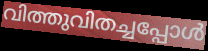
വിത്തുവിതച്ചപ്പോൾ